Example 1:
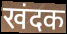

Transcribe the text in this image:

खंदक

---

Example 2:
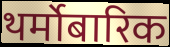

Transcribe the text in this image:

थर्मोबारिक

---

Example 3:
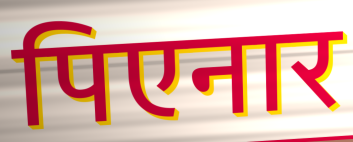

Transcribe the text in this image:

पिएनार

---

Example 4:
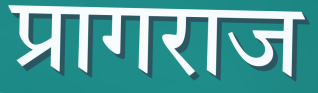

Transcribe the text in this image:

प्रागराज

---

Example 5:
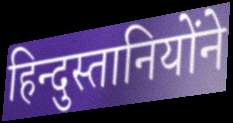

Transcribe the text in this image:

हिन्दुस्तानियोंने